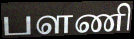
பளணி